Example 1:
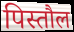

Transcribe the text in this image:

पिस्तौल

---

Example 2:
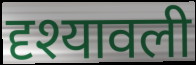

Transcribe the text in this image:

दृश्यावली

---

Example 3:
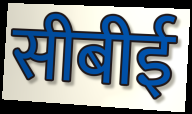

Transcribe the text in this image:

सीबीई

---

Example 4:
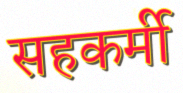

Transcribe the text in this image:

सहकर्मी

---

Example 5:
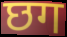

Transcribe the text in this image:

छग